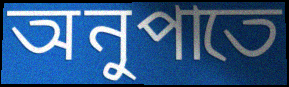
অনুপাতে